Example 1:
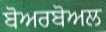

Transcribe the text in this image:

ਬੋਅਰਬੋਅਲ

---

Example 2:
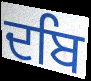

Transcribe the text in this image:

ਦਬਿ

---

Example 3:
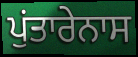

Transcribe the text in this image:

ਪੁਂਤਾਰੇਨਾਸ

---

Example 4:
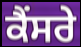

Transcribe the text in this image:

ਕੈਂਸਰੇ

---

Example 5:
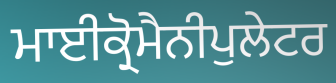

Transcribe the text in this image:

ਮਾਈਕ੍ਰੋਮੈਨੀਪੁਲੇਟਰ